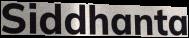
Siddhanta